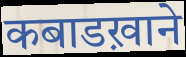
कबाडख़ाने